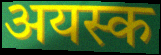
अयस्क